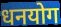
धनयोग